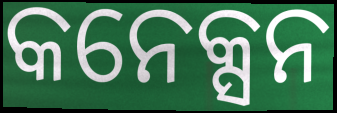
କନେକ୍ସନ